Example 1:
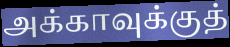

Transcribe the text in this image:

அக்காவுக்குத்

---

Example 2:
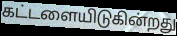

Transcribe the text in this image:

கட்டளையிடுகின்றது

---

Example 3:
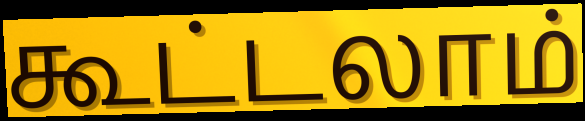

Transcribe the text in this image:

கூட்டலாம்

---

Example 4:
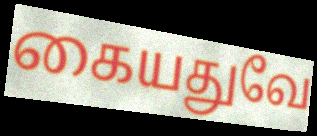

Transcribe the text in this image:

கையதுவே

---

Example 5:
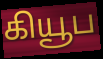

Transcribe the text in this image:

கியூப